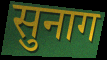
सुनाग